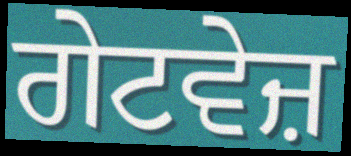
ਗੇਟਵੇਜ਼